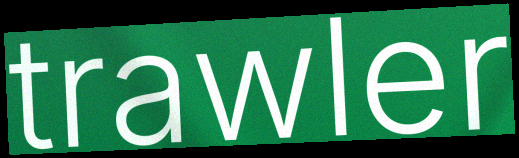
trawler